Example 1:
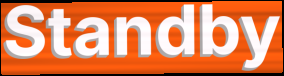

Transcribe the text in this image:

Standby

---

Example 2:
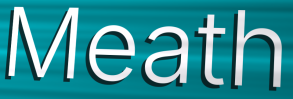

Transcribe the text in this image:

Meath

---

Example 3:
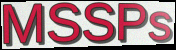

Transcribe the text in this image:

MSSPs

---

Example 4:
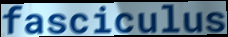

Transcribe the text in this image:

fasciculus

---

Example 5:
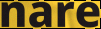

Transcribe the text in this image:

nare